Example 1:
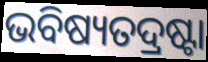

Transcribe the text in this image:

ଭବିଷ୍ୟତଦ୍ରଷ୍ଟା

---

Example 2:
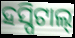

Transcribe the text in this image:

ହସ୍ପିଟାଲ୍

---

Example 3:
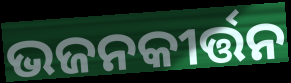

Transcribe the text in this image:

ଭଜନକୀର୍ତ୍ତନ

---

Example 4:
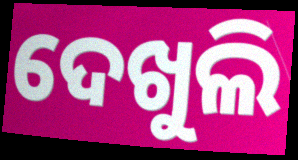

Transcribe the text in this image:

ଦେଖୁଲି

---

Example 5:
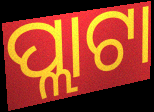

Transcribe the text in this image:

ପ୍ଲାଟା